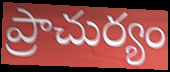
ప్రాచుర్యం